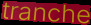
tranche